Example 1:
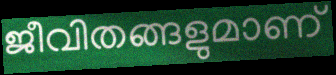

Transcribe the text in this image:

ജീവിതങ്ങളുമാണ്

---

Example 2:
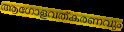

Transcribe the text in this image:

ആഗോളവത്കരണവും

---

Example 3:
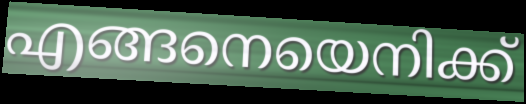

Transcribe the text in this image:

എങ്ങനെയെനിക്ക്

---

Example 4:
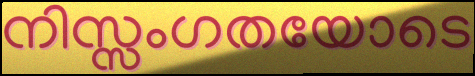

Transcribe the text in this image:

നിസ്സംഗതയോടെ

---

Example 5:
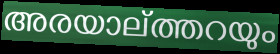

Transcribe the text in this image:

അരയാല്ത്തറയും